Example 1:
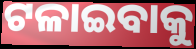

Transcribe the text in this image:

ଟଳାଇବାକୁ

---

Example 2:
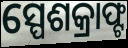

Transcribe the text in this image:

ସ୍ପେଶକ୍ରାଫ୍ଟ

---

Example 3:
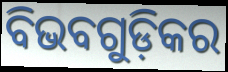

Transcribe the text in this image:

ବିଭବଗୁଡ଼ିକର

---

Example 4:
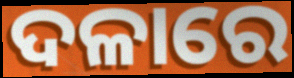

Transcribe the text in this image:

ଦଳାରେ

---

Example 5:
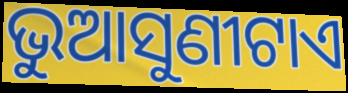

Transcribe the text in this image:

ଭୁଆସୁଣୀଟାଏ